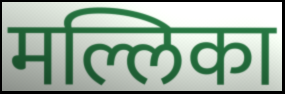
मल्लिका